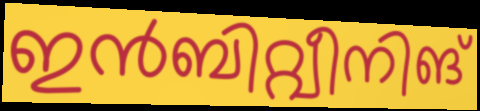
ഇൻബിറ്റ്വീനിങ്